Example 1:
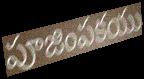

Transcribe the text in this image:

పూజింపకయు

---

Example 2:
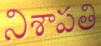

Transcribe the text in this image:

నిశాపతి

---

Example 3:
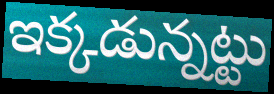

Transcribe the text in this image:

ఇక్కడున్నట్టు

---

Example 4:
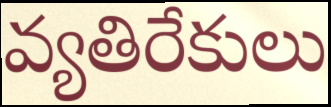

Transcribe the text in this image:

వ్యతిరేకులు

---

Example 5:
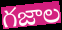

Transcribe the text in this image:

గజాల